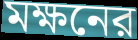
মক্ষনের